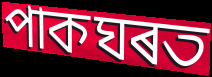
পাকঘৰত